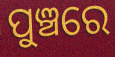
ପୁଞ୍ଚରେ